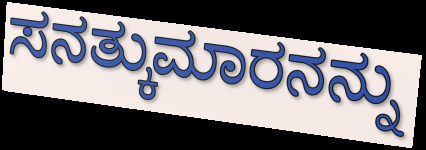
ಸನತ್ಕುಮಾರನನ್ನು